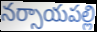
నర్సాయపల్లి